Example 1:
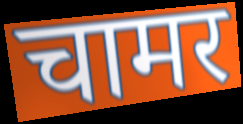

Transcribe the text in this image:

चामर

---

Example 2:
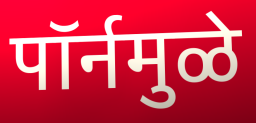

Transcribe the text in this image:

पॉर्नमुळे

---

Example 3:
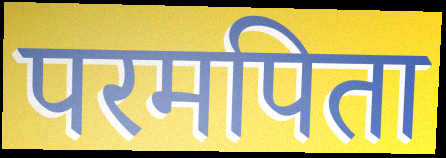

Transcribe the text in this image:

परमपिता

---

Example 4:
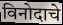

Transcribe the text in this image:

विनोदाचे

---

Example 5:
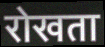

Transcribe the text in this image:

रोखता